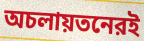
অচলায়তনেরই